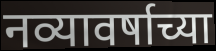
नव्यावर्षाच्या